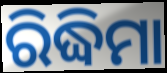
ରିଦ୍ଧିମା